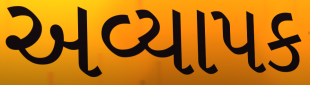
અવ્યાપક